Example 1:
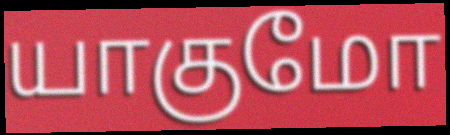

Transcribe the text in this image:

யாகுமோ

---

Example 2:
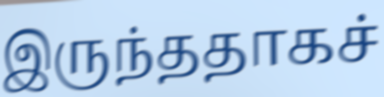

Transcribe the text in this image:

இருந்ததாகச்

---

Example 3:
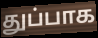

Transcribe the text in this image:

துப்பாக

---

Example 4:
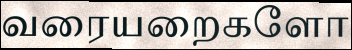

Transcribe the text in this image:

வரையறைகளோ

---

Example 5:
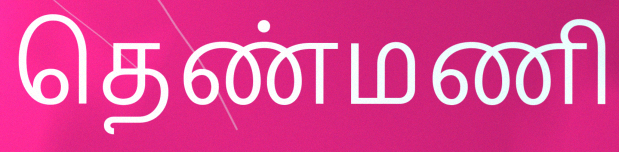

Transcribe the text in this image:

தெண்மணி